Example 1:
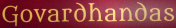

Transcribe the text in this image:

Govardhandas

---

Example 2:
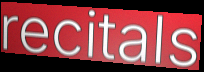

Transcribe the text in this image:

recitals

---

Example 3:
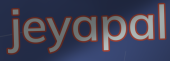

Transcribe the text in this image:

jeyapal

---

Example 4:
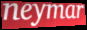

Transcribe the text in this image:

neymar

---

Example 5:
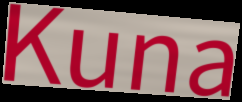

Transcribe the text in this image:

Kuna